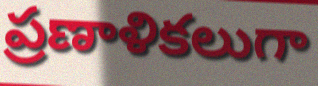
ప్రణాళికలుగా